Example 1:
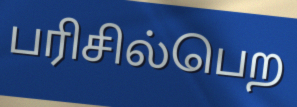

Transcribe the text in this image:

பரிசில்பெற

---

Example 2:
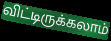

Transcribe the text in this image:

விட்டிருக்கலாம்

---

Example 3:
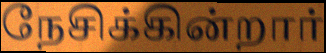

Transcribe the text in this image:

நேசிக்கின்றார்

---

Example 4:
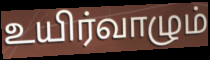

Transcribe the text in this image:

உயிர்வாழும்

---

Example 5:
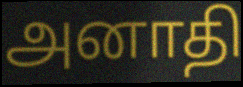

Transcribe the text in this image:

அனாதி